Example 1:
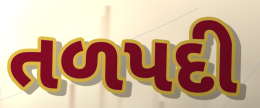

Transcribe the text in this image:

તળપદી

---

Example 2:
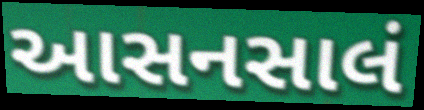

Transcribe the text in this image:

આસનસાલં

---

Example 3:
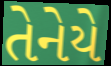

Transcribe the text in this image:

તેનેયે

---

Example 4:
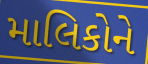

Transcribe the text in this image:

માલિકોને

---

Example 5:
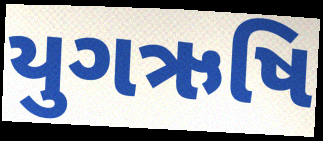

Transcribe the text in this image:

યુગઋષિ